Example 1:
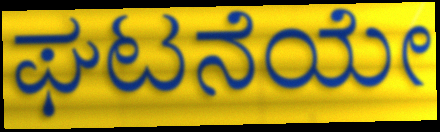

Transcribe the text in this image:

ಘಟನೆಯೇ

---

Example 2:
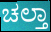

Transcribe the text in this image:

ಚಲ್ತಾ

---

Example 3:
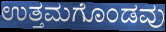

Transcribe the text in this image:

ಉತ್ತಮಗೊಂಡವು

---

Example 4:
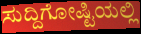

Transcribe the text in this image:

ಸುದ್ದಿಗೋಷ್ಟಿಯಲ್ಲಿ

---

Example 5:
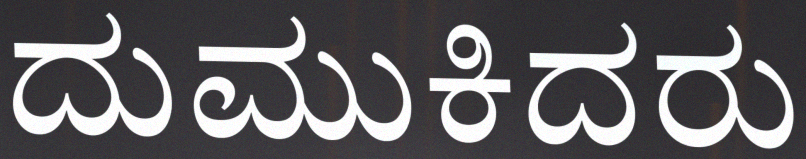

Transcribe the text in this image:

ದುಮುಕಿದರು